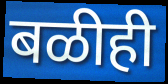
बळीही